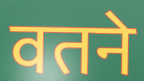
वतने